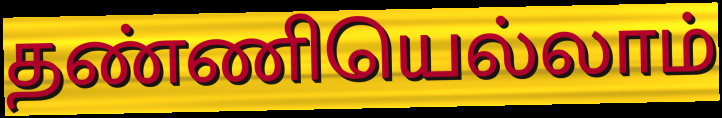
தண்ணியெல்லாம்